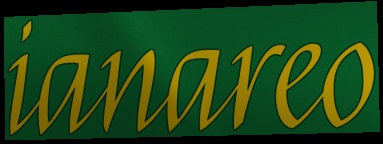
ianareo